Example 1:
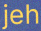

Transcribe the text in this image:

jeh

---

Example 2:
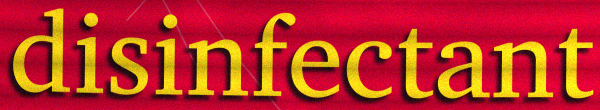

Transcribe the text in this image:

disinfectant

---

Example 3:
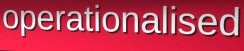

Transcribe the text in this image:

operationalised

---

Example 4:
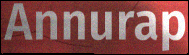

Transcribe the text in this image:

Annurap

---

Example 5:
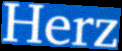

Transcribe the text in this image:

Herz